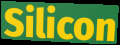
Silicon